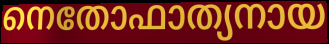
നെതോഫാത്യനായ